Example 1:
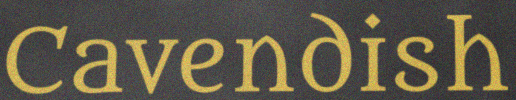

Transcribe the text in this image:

Cavendish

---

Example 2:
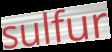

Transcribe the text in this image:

sulfur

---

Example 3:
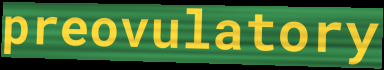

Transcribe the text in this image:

preovulatory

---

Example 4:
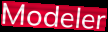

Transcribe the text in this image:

Modeler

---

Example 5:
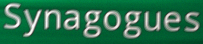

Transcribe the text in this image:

Synagogues